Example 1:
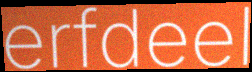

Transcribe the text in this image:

erfdeel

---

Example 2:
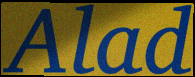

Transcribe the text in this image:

Alad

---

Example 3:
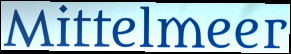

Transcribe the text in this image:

Mittelmeer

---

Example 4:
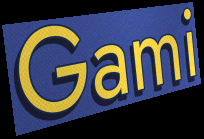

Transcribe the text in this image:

Gami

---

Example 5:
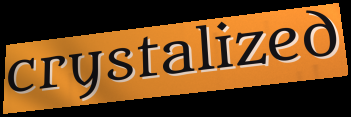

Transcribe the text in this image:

crystalized